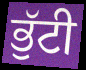
ਭੁੱਟੀ